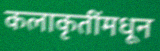
कलाकृतींमधून